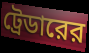
ট্রেডারের